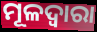
ମୂଳଦ୍ଵାରା